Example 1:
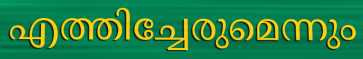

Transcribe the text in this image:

എത്തിച്ചേരുമെന്നും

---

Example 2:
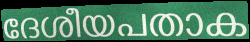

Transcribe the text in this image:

ദേശീയപതാക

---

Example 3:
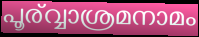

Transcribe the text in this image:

പൂര്വ്വാശ്രമനാമം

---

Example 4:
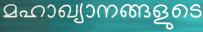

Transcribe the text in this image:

മഹാഖ്യാനങ്ങളുടെ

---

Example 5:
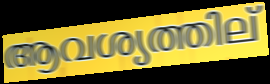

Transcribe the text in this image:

ആവശ്യത്തില്